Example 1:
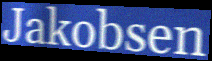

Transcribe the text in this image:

Jakobsen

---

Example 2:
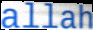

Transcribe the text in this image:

allah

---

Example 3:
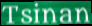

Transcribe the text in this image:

Tsinan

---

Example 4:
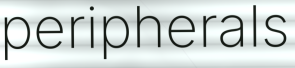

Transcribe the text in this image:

peripherals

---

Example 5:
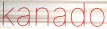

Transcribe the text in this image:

kanado